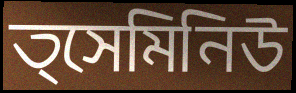
ত্সেমিনিউ